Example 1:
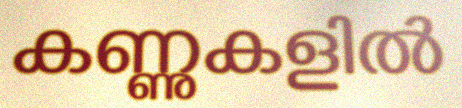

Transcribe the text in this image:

കണ്ണുകളിൽ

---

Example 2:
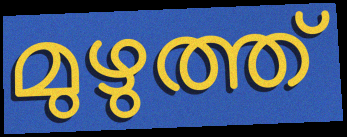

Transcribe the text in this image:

മുഴുത്ത്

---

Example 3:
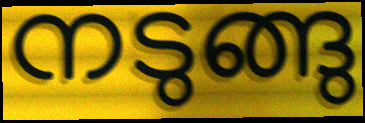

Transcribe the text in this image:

നടുങ്ങു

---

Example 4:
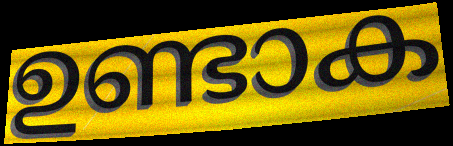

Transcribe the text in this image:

ഉണ്ടാക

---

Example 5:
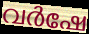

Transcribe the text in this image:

വർഷേ